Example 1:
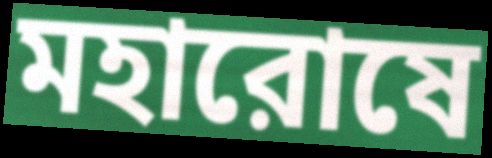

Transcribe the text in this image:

মহারোষে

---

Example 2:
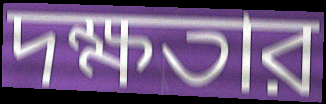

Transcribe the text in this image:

দক্ষতার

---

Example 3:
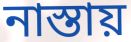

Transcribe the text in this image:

নাস্তায়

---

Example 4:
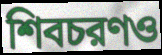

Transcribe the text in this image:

শিবচরণও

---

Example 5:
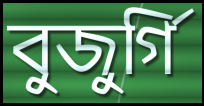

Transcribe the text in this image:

বুজুর্গি